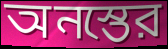
অনস্তের